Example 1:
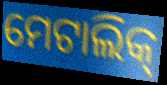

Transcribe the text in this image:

ମେଟାଲିକ୍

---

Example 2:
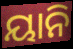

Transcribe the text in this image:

ୟାନି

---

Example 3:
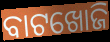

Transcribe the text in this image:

ବାଟଖୋଜି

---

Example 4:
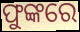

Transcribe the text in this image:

ଫୁଙ୍କରେ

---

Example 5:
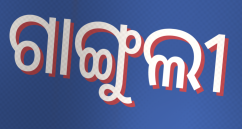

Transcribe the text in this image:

ଗାଙ୍ଗୁଲୀ